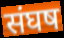
संघष